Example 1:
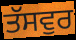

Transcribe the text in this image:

ਤੱਸਵੁਰ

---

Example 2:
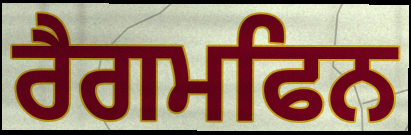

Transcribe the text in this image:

ਰੈਗਮਫਿਨ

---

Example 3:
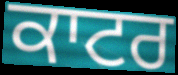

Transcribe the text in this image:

ਕਾਟਰ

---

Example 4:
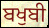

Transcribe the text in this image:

ਬਖੁਬੀ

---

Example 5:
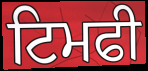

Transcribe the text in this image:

ਟਿਮਫੀ